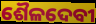
ଶୈଳଦେବୀ